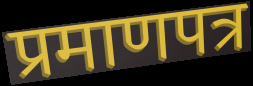
प्रमाणपत्र